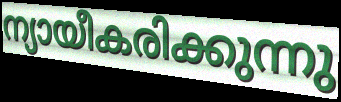
ന്യായീകരിക്കുന്നു